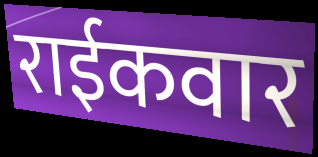
राईकवार